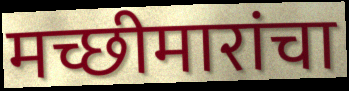
मच्छीमारांचा